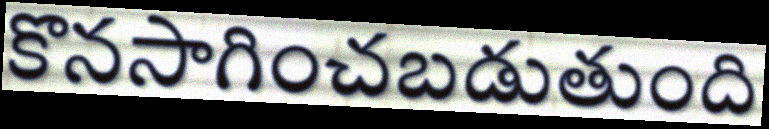
కొనసాగించబడుతుంది